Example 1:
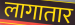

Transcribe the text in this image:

लागातार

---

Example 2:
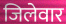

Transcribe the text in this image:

जिलेवार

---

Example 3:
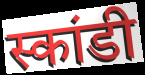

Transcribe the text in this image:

स्कांडी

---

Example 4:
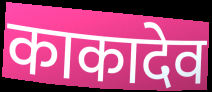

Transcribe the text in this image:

काकादेव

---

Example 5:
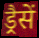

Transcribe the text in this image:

ड्रैसें